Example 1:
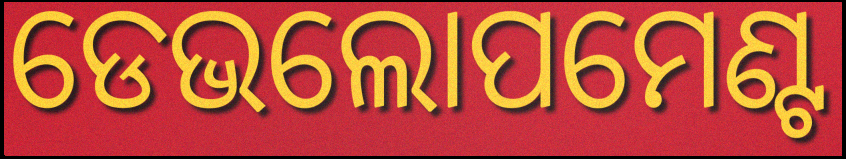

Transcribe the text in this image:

ଡେଭଲୋପମେଣ୍ଟ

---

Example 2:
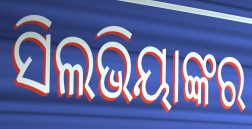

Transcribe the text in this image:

ସିଲଭିୟାଙ୍କର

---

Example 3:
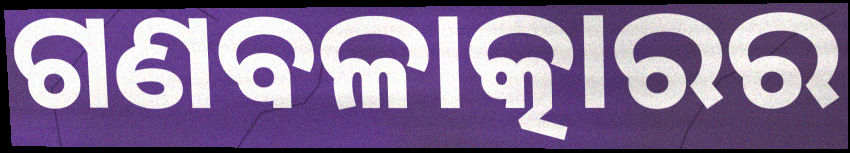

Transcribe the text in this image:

ଗଣବଳାତ୍କାରର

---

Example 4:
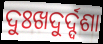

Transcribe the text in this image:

ଦୁଃଖଦୁର୍ଦ୍ଦଶା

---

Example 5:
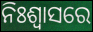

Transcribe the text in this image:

ନିଃଶ୍ଵାସରେ